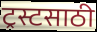
ट्रस्टसाठी